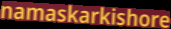
namaskarkishore